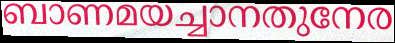
ബാണമയച്ചാനതുനേര